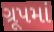
ગ્રૂપમાં